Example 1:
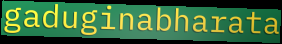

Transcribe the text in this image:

gaduginabharata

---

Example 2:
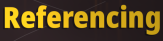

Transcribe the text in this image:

Referencing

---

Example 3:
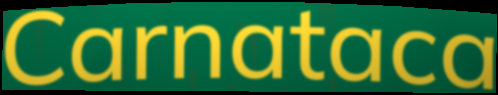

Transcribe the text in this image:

Carnataca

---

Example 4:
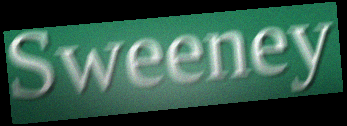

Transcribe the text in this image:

Sweeney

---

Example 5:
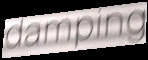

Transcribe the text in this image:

damping